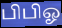
பிபிஓ